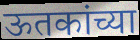
ऊतकांच्या